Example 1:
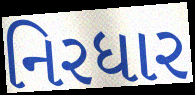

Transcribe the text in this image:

નિરધાર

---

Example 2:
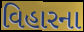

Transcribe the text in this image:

વિહારના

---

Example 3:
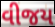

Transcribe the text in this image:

વીજય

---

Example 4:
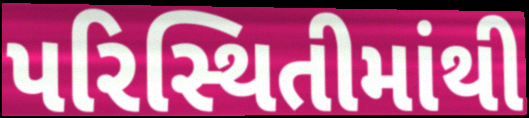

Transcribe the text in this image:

પરિસ્થિતીમાંથી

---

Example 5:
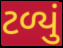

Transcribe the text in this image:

ટળ્યું